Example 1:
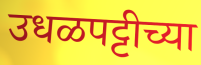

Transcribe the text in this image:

उधळपट्टीच्या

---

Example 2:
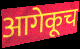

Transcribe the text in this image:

आगेकूच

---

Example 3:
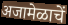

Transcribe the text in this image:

अजामेळाचें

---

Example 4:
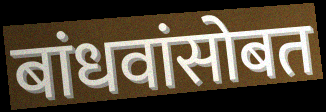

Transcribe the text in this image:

बांधवांसोबत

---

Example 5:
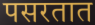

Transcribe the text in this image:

पसरतात